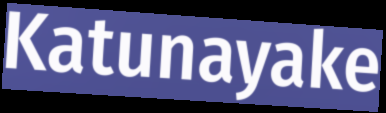
Katunayake